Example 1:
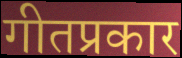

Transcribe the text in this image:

गीतप्रकार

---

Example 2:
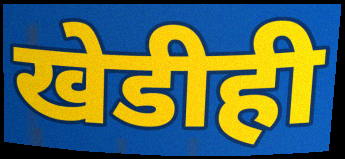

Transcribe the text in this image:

खेडीही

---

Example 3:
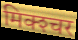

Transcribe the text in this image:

मिक्श्चर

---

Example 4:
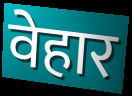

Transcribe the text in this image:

वेहार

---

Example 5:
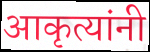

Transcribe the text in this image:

आकृत्यांनी